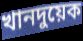
খানদুয়েক